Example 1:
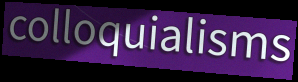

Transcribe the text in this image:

colloquialisms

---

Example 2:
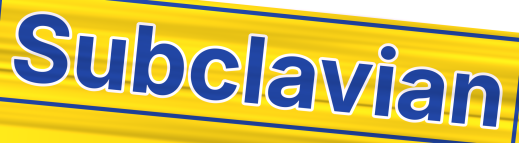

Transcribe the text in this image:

Subclavian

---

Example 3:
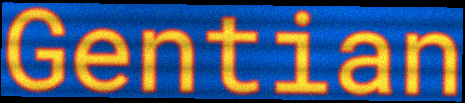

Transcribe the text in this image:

Gentian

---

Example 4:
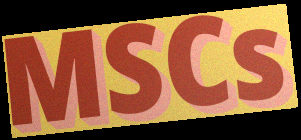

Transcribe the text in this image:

MSCs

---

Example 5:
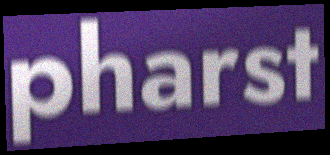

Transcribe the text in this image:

pharst